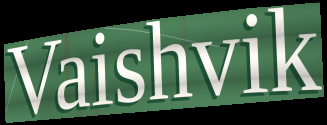
Vaishvik